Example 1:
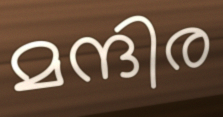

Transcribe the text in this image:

മന്ദിര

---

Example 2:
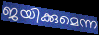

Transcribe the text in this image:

ജയിക്കുമെന്ന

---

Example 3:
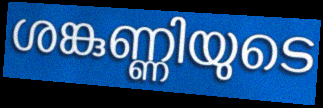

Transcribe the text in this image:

ശങ്കുണ്ണിയുടെ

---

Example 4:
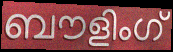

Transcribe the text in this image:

ബൗളിംഗ്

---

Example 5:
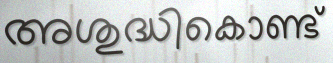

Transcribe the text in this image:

അശുദ്ധികൊണ്ട്